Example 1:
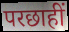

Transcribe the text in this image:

परछाहीं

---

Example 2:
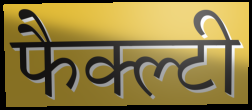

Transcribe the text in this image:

फैक्ल्टी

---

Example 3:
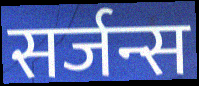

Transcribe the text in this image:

सर्जन्स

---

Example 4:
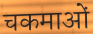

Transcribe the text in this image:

चकमाओं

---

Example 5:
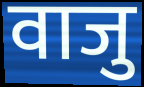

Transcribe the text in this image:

वाजु